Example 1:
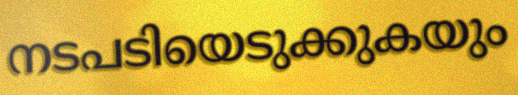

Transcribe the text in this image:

നടപടിയെടുക്കുകയും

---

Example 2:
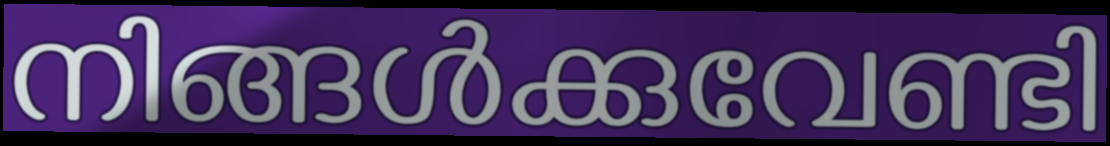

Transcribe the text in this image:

നിങ്ങൾക്കുവേണ്ടി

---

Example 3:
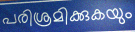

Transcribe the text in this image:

പരിശ്രമിക്കുകയും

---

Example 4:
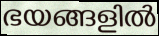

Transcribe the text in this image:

ഭയങ്ങളിൽ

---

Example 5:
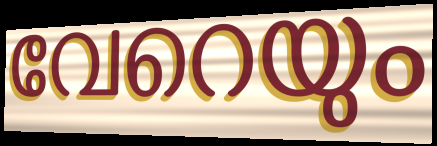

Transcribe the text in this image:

വേറെയും